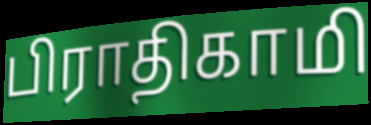
பிராதிகாமி